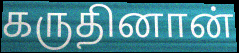
கருதினான்